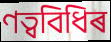
ণত্ববিধিৰ